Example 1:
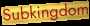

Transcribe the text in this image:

Subkingdom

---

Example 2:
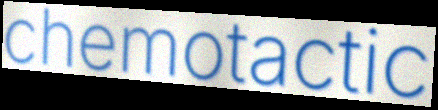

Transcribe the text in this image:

chemotactic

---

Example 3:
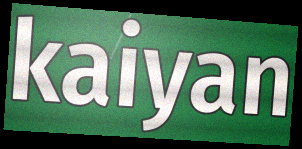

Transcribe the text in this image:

kaiyan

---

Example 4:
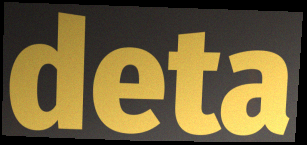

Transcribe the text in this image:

deta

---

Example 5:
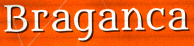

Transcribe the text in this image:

Braganca